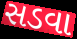
સડવા